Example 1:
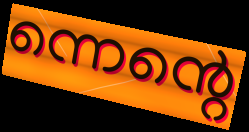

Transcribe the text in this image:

ന്നെന്റെ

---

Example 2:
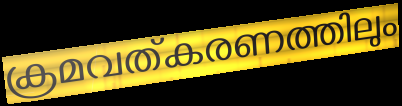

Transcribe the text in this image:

ക്രമവത്കരണത്തിലും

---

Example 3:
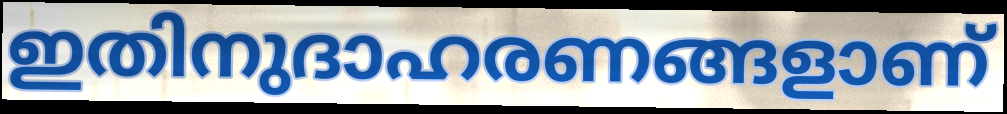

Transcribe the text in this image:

ഇതിനുദാഹരണങ്ങളാണ്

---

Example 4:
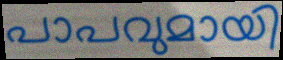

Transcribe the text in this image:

പാപവുമായി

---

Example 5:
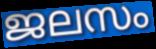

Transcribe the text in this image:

ജലസം